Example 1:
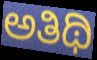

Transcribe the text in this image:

ಅತಿಥಿ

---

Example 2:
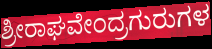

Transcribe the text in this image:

ಶ್ರೀರಾಘವೇಂದ್ರಗುರುಗಳ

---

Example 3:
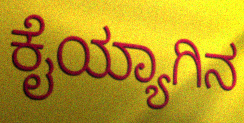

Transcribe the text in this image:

ಕೈಯ್ಯಾಗಿನ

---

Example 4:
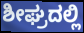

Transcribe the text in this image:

ಶೀಘ್ರದಲ್ಲಿ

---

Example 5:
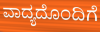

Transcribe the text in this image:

ವಾದ್ಯದೊಂದಿಗೆ